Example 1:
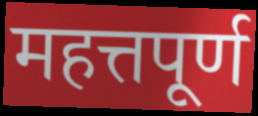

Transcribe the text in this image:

महत्तपूर्ण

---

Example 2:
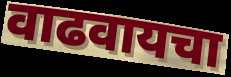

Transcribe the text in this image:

वाढवायचा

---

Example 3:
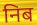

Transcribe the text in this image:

निब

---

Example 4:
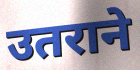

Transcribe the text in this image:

उतराने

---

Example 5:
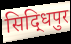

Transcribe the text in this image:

सिद्धिपुर